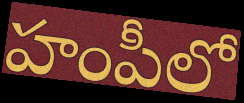
హంపీలో